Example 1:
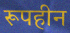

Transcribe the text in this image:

रूपहीन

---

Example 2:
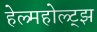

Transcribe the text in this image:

हेल्महोल्ट्झ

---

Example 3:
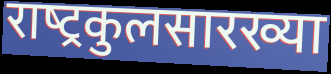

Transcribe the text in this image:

राष्ट्रकुलसारख्या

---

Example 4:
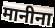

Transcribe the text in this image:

मानीना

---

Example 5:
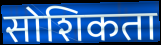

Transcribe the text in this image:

सोशिकता